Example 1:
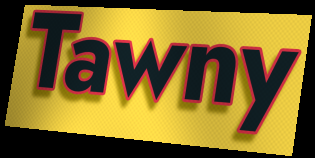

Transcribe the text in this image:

Tawny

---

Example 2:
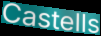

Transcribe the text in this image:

Castells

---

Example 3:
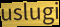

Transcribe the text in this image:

uslugi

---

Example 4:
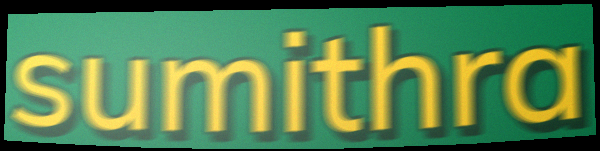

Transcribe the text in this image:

sumithra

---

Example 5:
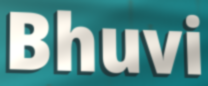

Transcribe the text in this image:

Bhuvi